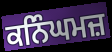
ਕਨਿੰਘਮਜ਼